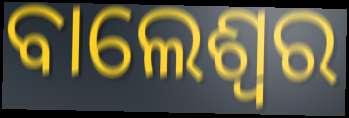
ବାଲେଶ୍ବର